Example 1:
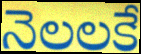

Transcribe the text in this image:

నెలలకే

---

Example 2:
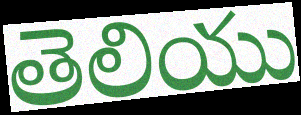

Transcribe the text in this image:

తెలియు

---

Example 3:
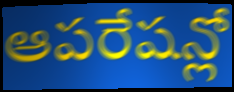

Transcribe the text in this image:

ఆపరేషన్లో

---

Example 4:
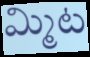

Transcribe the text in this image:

మ్మిట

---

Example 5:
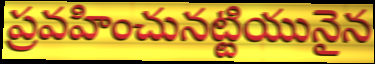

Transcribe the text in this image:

ప్రవహించునట్టియునైన